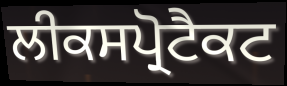
ਲੀਕਸਪ੍ਰੋਟੈਕਟ